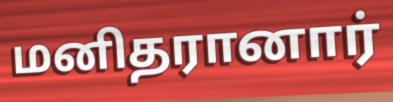
மனிதரானார்